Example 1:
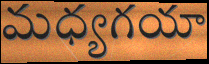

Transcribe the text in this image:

మధ్యగయా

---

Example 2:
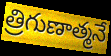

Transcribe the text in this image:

త్రిగుణాత్మనే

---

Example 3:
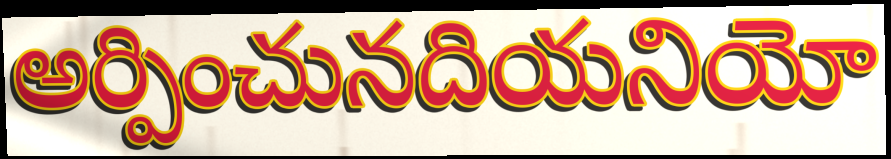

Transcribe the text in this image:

అర్పించునదియనియో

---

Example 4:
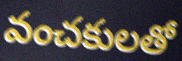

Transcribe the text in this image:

వంచకులతో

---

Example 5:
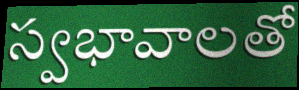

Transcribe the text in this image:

స్వభావాలతో